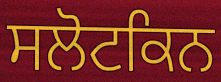
ਸਲੋਟਕਿਨ